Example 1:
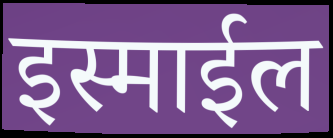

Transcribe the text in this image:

इस्माईल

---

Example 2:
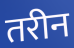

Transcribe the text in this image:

तरीन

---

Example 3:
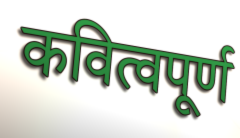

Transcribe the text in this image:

कवित्वपूर्ण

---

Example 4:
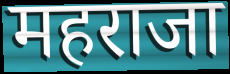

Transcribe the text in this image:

महराजा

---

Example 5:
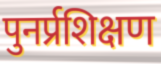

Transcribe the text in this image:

पुनर्प्रशिक्षण